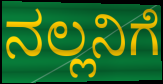
ನಲ್ಲನಿಗೆ